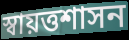
স্বায়ত্তশাসন